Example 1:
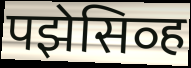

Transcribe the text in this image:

पझेसिव्ह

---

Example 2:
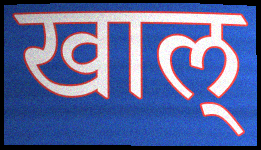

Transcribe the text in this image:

खाल्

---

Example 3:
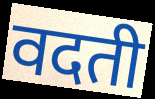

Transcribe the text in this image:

वदती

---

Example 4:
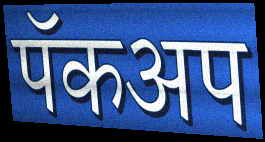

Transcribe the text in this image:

पॅकअप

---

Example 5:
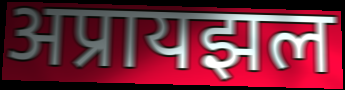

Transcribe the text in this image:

अप्रायझल